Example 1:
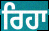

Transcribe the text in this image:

ਰਿਹਾ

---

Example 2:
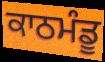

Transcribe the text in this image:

ਕਾਠਮੰਡੂ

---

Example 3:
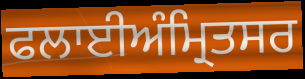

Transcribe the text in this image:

ਫਲਾਈਅੰਮ੍ਰਿਤਸਰ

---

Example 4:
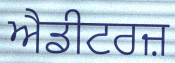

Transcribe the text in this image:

ਐਡੀਟਰਜ਼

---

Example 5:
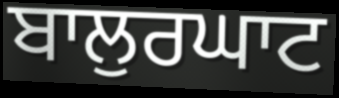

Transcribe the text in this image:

ਬਾਲੁਰਘਾਟ